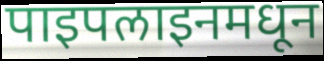
पाइपलाइनमधून